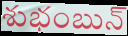
శుభంబున్